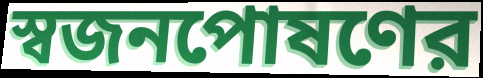
স্বজনপোষণের